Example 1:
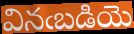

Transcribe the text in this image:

వినఁబడియె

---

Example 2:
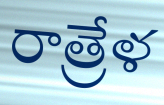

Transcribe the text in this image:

రాత్రేళ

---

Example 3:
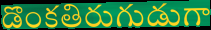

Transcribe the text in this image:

డొంకతిరుగుడుగా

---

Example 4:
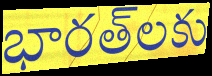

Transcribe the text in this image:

భారత్‌లకు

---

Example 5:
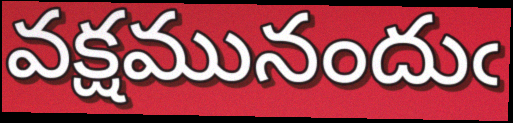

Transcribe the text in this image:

వక్షమునందుఁ